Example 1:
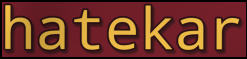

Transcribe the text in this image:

hatekar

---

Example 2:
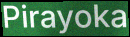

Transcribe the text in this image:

Pirayoka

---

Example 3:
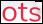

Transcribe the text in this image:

ots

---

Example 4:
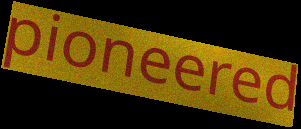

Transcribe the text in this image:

pioneered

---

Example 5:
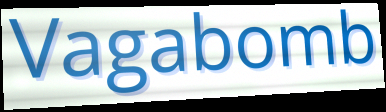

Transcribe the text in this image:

Vagabomb